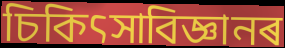
চিকিৎসাবিজ্ঞানৰ